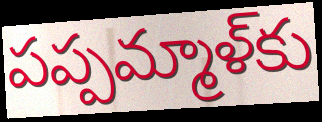
పప్పమ్మాళ్‌కు